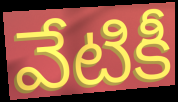
వేటికీ